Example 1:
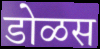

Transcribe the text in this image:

डोळस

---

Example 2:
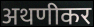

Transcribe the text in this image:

अथणीकर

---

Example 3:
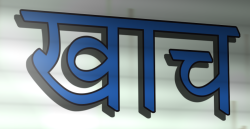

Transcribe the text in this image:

खाच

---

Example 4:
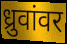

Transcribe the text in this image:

ध्रुवांवर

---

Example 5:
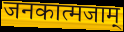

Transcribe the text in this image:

जनकात्मजाम्